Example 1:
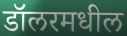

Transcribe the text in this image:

डॉलरमधील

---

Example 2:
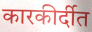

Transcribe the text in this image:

कारकीर्दीत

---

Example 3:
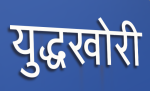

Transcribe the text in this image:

युद्धखोरी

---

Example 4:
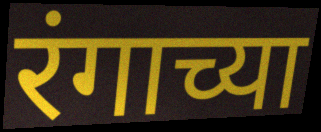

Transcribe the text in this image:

रंगाच्या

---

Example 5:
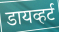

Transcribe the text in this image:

डायव्हर्ट